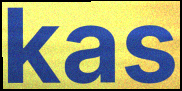
kas